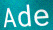
Ade